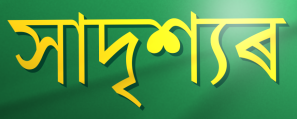
সাদৃশ্যৰ